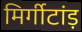
मिर्गीटांड़